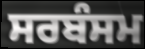
ਸਰਬੰਸਮ